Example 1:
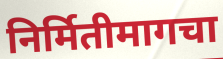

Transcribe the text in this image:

निर्मितीमागचा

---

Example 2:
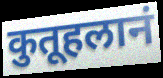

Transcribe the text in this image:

कुतूहलानं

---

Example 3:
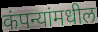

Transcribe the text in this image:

कंपन्यांमधील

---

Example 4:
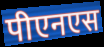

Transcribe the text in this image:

पीएनएस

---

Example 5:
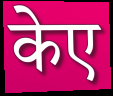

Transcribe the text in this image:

केए